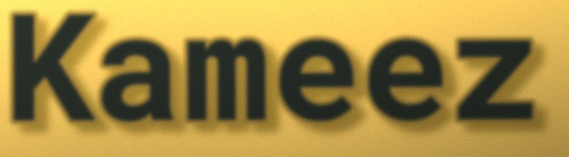
Kameez